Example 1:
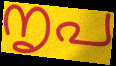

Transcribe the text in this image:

നൃപ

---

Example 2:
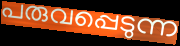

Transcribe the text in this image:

പരുവപ്പെടുന്ന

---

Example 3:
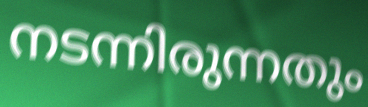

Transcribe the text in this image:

നടന്നിരുന്നതും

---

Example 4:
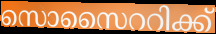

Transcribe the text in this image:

സൊസൈററിക്ക്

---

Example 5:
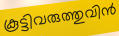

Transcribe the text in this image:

കൂട്ടിവരുത്തുവിൻ